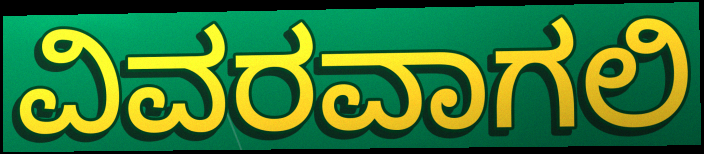
ವಿವರವಾಗಲಿ